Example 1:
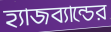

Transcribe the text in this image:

হ্যাজব্যান্ডের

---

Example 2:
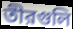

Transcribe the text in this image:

তীরগুলি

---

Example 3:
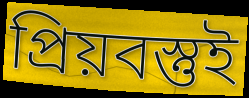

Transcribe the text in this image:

প্রিয়বস্তুই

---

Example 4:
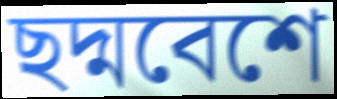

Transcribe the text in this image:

ছদ্মবেশে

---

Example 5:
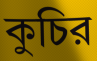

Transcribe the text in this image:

কুচির